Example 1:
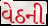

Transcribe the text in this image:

વેઠની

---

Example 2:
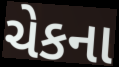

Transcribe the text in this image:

ચેકના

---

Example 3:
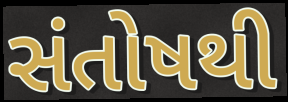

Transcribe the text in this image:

સંતોષથી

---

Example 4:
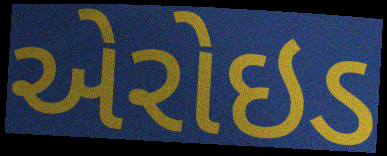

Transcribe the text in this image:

એરોઇડ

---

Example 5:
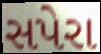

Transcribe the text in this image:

સપેરા